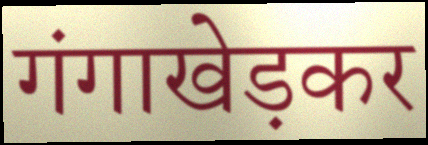
गंगाखेड़कर